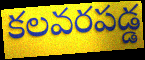
కలవరపడ్డ